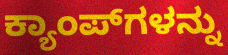
ಕ್ಯಾಂಪ್‍ಗಳನ್ನು